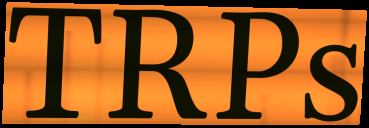
TRPs